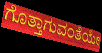
ಗೊತ್ತಾಗುವಂತೆಯೇ